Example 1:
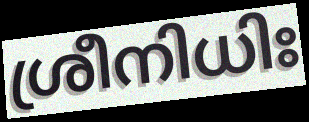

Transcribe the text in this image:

ശ്രീനിധിഃ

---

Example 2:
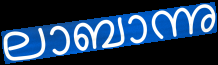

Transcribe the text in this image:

ലാബാന്നു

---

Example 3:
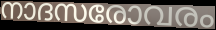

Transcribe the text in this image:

നാദസരോവരം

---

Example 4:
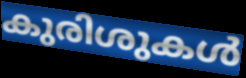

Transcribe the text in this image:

കുരിശുകൾ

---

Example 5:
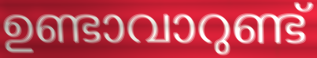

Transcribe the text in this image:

ഉണ്ടാവാറുണ്ട്